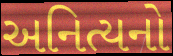
અનિત્યનો